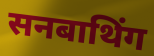
सनबाथिंग